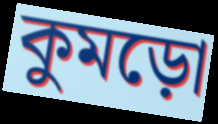
কুমড়ো